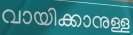
വായിക്കാനുള്ള